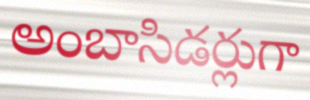
అంబాసిడర్లుగా